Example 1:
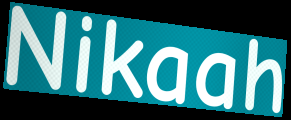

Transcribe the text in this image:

Nikaah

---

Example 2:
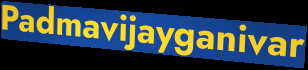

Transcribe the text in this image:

Padmavijayganivar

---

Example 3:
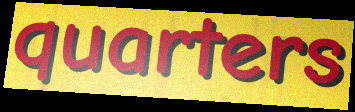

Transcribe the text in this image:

quarters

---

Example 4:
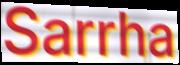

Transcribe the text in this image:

Sarrha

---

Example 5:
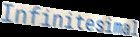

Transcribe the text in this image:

Infinitesimal